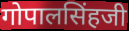
गोपालसिंहजी